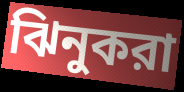
ঝিনুকরা